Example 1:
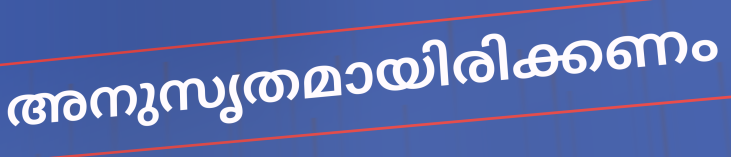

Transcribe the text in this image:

അനുസൃതമായിരിക്കണം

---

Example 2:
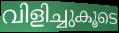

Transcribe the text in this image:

വിളിച്ചുകൂടെ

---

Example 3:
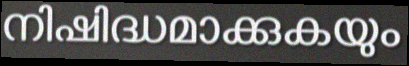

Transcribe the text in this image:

നിഷിദ്ധമാക്കുകയും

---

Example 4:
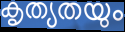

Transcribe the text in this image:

കൃത്യതയും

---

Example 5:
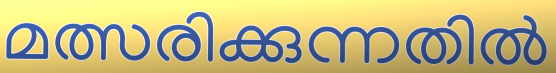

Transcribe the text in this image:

മത്സരിക്കുന്നതിൽ